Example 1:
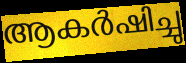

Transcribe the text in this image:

ആകർഷിച്ചു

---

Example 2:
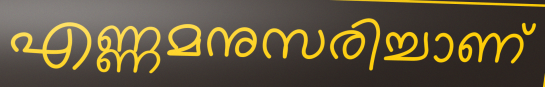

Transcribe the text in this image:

എണ്ണമനുസരിച്ചാണ്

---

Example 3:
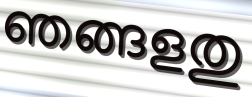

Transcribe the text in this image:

ഞങ്ങളതു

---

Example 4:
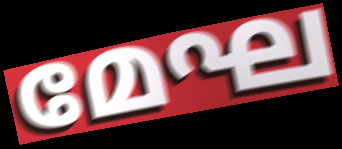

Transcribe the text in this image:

മേഘ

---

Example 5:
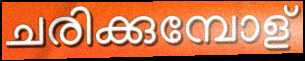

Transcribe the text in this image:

ചരിക്കുമ്പോള്